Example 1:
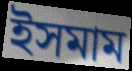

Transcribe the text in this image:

ইসমাম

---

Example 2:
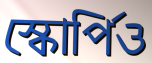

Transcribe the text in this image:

স্কোর্পিও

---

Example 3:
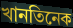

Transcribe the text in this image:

খানতিনেক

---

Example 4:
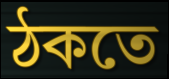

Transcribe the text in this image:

ঠকতে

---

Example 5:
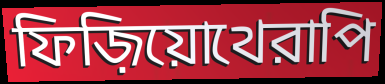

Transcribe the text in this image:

ফিজ়িয়োথেরাপি